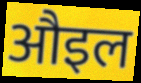
औइल